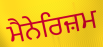
ਮੈਨੇਰਿਜ਼ਮ